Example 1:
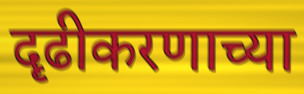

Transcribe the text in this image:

दृढीकरणाच्या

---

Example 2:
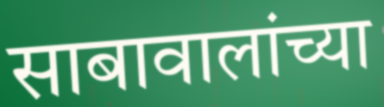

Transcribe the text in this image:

साबावालांच्या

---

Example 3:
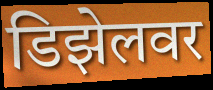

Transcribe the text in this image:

डिझेलवर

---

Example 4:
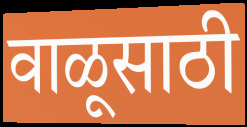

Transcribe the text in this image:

वाळूसाठी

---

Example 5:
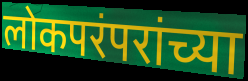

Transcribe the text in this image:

लोकपरंपरांच्या